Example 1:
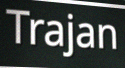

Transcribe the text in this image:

Trajan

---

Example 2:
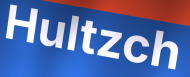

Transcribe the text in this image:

Hultzch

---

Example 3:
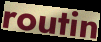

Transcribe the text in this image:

routin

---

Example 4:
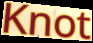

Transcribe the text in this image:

Knot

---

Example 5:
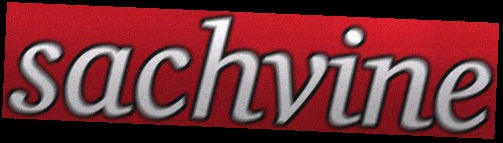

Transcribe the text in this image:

sachvine